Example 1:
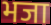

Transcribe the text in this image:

भजा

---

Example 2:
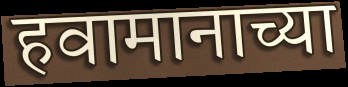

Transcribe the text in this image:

हवामानाच्या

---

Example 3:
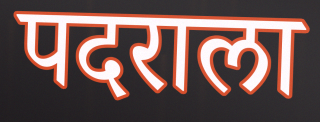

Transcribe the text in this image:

पदराला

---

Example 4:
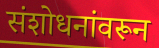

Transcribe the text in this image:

संशोधनांवरून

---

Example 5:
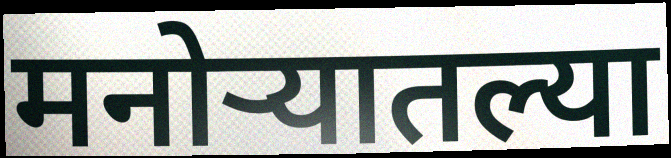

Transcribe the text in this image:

मनोर्‍यातल्या